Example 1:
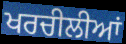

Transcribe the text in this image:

ਖਰਚੀਲੀਆਂ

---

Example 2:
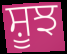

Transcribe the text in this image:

ਸ਼ੂਝ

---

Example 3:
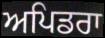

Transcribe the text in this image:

ਅਪਿਡਰਾ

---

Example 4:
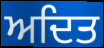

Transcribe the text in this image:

ਅਦਿਤ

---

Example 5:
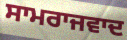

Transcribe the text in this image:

ਸਾਮਰਾਜਵਾਦ